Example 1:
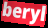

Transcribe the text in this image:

beryl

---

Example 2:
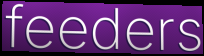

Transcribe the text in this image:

feeders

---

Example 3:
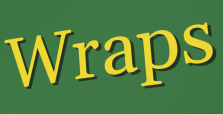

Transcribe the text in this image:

Wraps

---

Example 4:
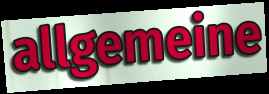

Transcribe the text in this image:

allgemeine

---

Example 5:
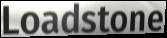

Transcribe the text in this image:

Loadstone